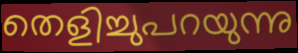
തെളിച്ചുപറയുന്നു